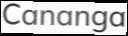
Cananga